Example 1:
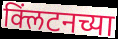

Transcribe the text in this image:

क्लिंटनच्या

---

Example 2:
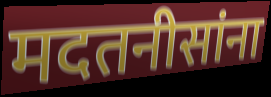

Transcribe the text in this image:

मदतनीसांना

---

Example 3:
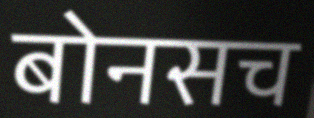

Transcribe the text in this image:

बोनसच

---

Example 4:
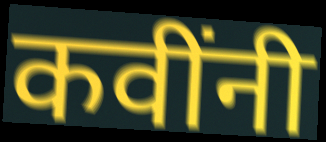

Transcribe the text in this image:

कवींनी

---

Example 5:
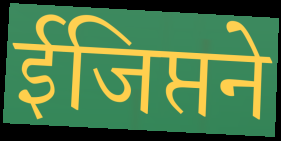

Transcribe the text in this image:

ईजिप्तने